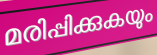
മരിപ്പിക്കുകയും